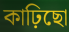
কাঢ়িছো